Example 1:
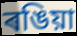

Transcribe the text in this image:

ৰঙিয়া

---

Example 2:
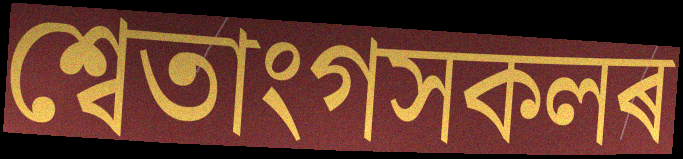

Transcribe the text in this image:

শ্বেতাংগসকলৰ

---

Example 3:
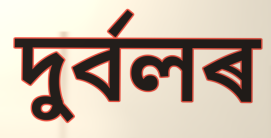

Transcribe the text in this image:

দুৰ্বলৰ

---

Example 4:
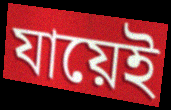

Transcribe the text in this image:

যায়েই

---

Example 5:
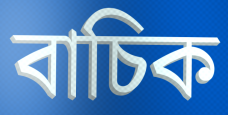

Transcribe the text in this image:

বাচিক